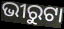
ଭୀରୁଟା